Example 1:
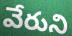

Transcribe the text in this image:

వేరుని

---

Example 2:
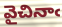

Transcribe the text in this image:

వైచినాఁ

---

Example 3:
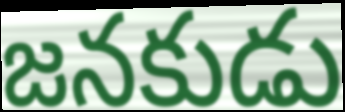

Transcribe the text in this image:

జనకుడు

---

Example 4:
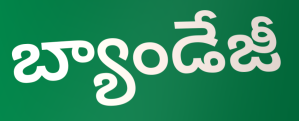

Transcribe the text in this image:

బ్యాండేజీ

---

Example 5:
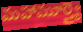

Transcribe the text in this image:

మహామూర్త్యై